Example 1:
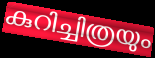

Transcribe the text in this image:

കുറിച്ചിത്രയും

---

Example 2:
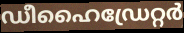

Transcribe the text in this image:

ഡീഹൈഡ്രേറ്റർ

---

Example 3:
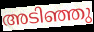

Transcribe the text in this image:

അടിഞ്ഞു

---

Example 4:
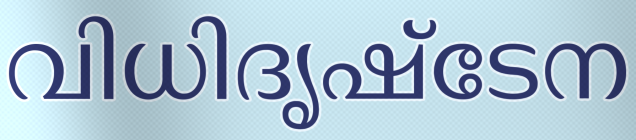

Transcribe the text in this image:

വിധിദൃഷ്ടേന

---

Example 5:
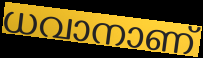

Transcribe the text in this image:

ധവാനാണ്